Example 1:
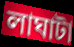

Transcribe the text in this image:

লাঘাটা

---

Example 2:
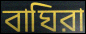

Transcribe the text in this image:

বাঘিরা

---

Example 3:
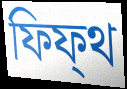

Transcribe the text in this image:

ফিফ্থ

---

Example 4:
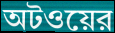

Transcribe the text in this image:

অটওয়ের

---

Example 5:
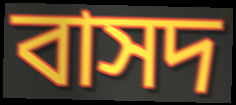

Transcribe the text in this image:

বাসদ